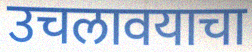
उचलावयाचा